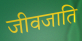
जीवजाति